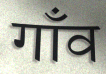
गाँव